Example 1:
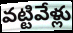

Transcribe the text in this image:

వట్టివేళ్లు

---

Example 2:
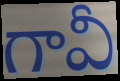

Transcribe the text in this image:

గావీ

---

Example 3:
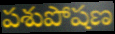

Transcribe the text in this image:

పశుపోషణ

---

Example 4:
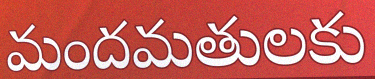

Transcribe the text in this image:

మందమతులకు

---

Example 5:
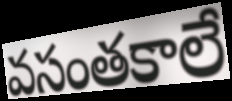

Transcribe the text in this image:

వసంతకాలే